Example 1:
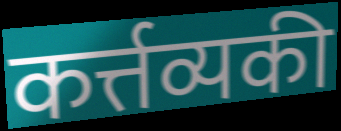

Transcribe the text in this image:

कर्त्तव्यकी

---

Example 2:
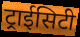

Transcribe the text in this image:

ट्राईसिटी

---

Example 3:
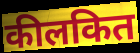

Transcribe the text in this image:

कीलकित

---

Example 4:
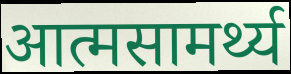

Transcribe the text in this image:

आत्मसामर्थ्य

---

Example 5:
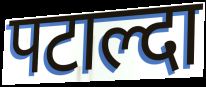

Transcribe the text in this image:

पटाल्दा